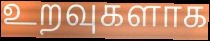
உறவுகளாக